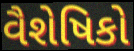
વૈશેષિકો